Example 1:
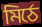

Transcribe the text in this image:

মিঠে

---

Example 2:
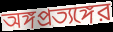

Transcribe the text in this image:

অঙ্গপ্রত্যঙ্গের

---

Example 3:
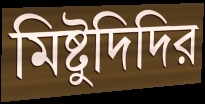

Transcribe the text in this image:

মিষ্টুদিদির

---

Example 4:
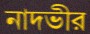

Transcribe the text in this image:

নাদভীর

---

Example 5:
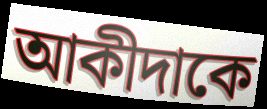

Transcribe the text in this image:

আকীদাকে